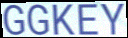
GGKEY